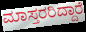
ಮಾಸ್ತರರಿದ್ದಾರೆ